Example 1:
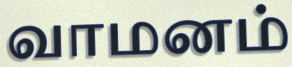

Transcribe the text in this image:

வாமனம்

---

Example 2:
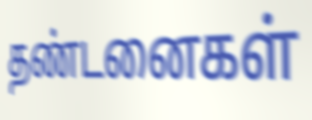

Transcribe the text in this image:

தண்டனைகள்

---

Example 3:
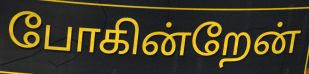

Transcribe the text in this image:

போகின்றேன்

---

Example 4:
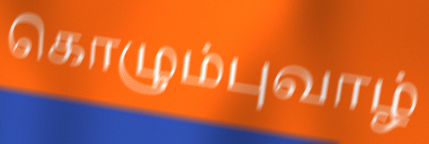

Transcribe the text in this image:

கொழும்புவாழ்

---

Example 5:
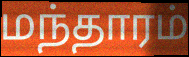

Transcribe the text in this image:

மந்தாரம்